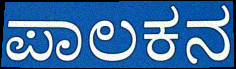
ಪಾಲಕನ